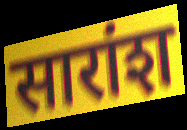
सारांश